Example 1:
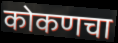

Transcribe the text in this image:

कोकणचा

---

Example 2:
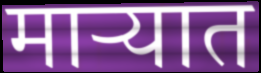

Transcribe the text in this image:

माऱ्यात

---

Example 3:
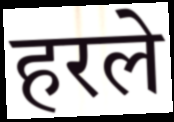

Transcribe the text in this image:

हरले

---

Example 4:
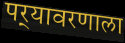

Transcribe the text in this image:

पर्यावरणाला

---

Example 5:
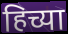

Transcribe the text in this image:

हिच्या